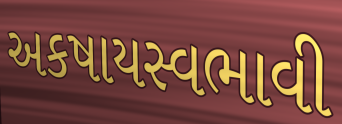
અકષાયસ્વભાવી